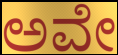
ಅವೇ